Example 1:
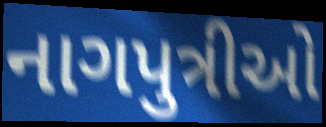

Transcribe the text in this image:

નાગપુત્રીઓ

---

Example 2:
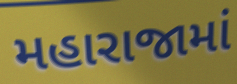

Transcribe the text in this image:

મહારાજામાં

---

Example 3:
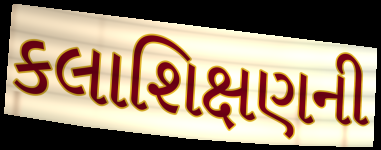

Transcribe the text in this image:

કલાશિક્ષણની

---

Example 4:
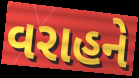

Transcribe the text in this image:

વરાહને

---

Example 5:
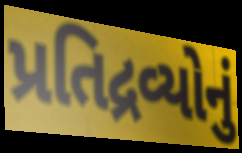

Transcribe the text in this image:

પ્રતિદ્રવ્યોનું